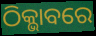
ଠିକ୍ଭାବରେ